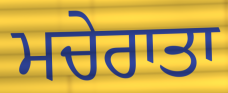
ਮਚੇਰਾਤਾ